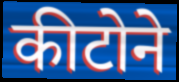
कीटोने